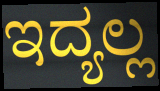
ಇದ್ಯಲ್ಲ